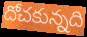
దోచకున్నది